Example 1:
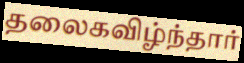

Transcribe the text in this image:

தலைகவிழ்ந்தார்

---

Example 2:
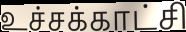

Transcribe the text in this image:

உச்சக்காட்சி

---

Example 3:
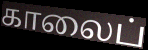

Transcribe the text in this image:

காலைப்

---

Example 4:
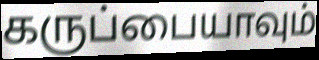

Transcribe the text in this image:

கருப்பையாவும்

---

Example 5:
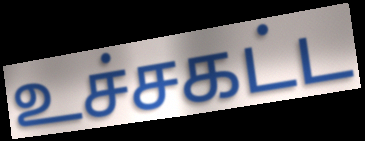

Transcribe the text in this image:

உச்சகட்ட